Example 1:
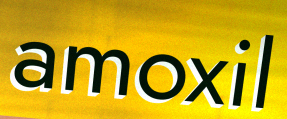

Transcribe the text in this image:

amoxil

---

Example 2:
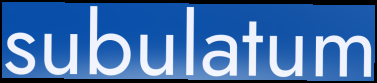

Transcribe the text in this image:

subulatum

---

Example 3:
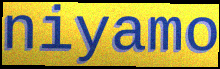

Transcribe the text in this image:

niyamo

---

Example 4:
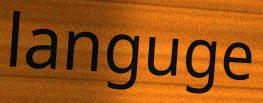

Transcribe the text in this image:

languge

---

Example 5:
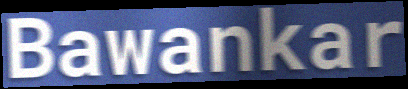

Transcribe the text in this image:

Bawankar